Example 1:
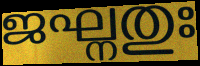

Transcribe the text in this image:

ജഘ്നതുഃ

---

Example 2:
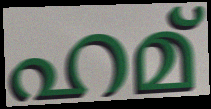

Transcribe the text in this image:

ഹമ്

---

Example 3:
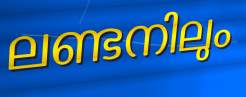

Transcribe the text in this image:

ലണ്ടനിലും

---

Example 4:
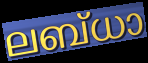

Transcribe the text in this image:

ലബ്ധാ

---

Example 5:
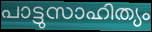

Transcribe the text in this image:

പാട്ടുസാഹിത്യം